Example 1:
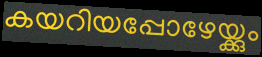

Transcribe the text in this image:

കയറിയപ്പോഴേയ്ക്കും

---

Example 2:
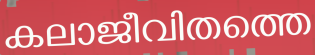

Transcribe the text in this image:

കലാജീവിതത്തെ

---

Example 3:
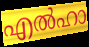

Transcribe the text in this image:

എൽഹാ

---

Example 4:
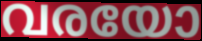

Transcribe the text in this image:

വരയോ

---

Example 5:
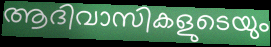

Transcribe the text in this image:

ആദിവാസികളുടെയും